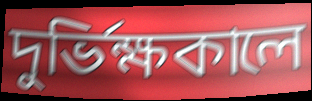
দুর্ভিক্ষকালে